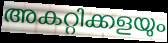
അകറ്റിക്കളയും